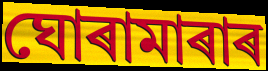
ঘোৰামাৰাৰ